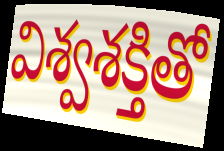
విశ్వశక్తితో